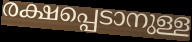
രക്ഷപ്പെടാനുള്ള